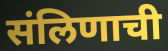
संलिणाची